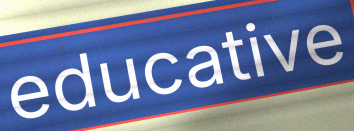
educative